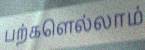
பற்களெல்லாம்